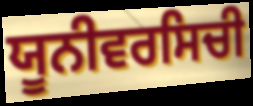
ਯੂਨੀਵਰਸਿਚੀ